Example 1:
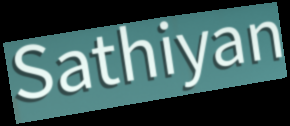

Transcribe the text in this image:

Sathiyan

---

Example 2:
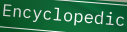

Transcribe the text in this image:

Encyclopedic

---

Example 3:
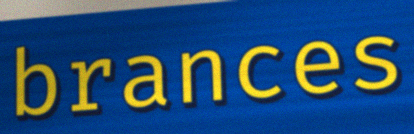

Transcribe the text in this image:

brances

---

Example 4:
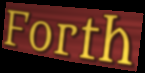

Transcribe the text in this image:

Forth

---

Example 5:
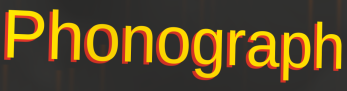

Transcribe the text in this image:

Phonograph